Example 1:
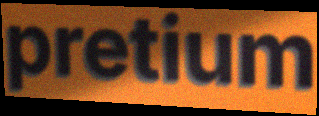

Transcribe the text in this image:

pretium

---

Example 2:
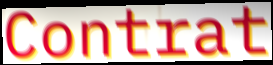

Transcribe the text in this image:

Contrat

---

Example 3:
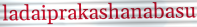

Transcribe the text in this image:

ladaiprakashanabasu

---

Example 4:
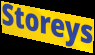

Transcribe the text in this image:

Storeys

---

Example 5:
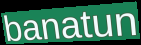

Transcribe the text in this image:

banatun